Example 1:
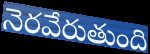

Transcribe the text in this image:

నెరవేరుతుంది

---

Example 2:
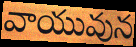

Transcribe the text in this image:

వాయువున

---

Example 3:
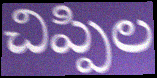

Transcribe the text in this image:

చిప్పిల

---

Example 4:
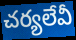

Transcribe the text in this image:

చర్యలేవీ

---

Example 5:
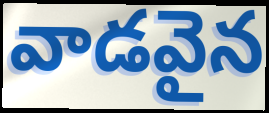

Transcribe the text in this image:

వాడవైన